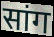
सांग